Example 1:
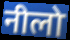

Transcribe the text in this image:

नीलो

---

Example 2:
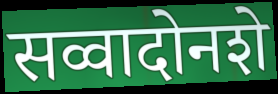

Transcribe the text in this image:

सव्वादोनशे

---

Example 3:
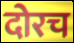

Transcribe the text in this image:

दोरच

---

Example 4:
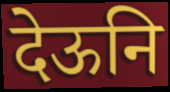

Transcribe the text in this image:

देऊनि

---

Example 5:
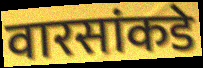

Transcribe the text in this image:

वारसांकडे